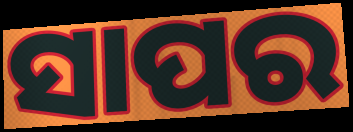
ସାପର